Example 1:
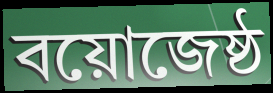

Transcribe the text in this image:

বয়োজেষ্ঠ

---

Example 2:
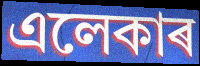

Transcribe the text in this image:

এলেকাৰ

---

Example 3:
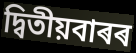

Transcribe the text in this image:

দ্বিতীয়বাৰৰ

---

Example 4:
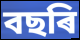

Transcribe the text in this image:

বছৰি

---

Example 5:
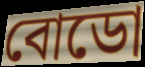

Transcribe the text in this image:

বোডো